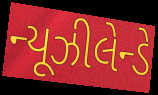
ન્યૂઝીલેન્ડે